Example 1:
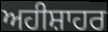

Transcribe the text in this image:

ਅਹੀਸ਼ਾਹਰ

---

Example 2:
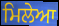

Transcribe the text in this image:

ਮਿਲੇਆ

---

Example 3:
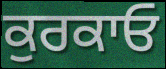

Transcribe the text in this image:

ਕੁਰਕਾਓ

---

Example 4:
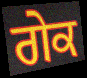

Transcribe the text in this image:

ਗੇਕ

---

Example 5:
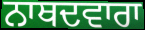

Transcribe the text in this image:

ਨਾਥਦਵਾਰਾ